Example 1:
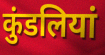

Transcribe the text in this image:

कुंडलियां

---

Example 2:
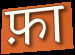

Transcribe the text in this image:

फ़ा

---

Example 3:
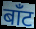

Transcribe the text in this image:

बांँट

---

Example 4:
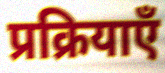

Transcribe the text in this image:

प्रक्रियाएँ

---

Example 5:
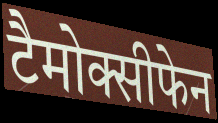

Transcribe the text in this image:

टैमोक्सीफेन